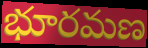
భూరమణ